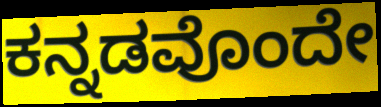
ಕನ್ನಡವೊಂದೇ